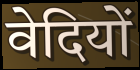
वेदियों